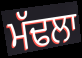
ਮੱਢਲਾ